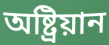
অষ্ট্ৰিয়ান